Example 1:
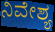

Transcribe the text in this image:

ನಿವೇಶ್ಯ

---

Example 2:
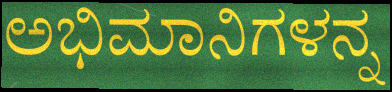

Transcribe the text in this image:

ಅಭಿಮಾನಿಗಳನ್ನ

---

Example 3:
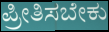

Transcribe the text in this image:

ಪ್ರೀತಿಸಬೇಕು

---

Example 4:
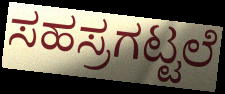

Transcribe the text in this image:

ಸಹಸ್ರಗಟ್ಟಲೆ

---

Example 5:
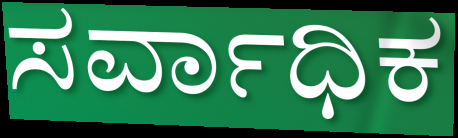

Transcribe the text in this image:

ಸರ್ವಾಧಿಕ